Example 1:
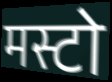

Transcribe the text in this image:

मस्टो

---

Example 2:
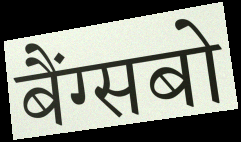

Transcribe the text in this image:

बैंग्सबो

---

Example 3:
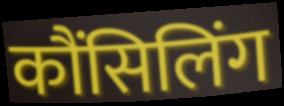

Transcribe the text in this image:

कौंसिलिंग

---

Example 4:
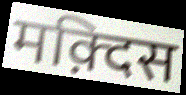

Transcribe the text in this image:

मक़्दिस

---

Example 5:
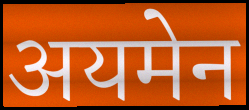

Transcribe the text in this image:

अयमेन